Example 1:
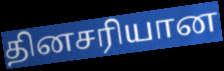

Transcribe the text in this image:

தினசரியான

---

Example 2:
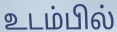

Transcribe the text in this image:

உடம்பில்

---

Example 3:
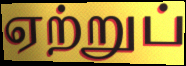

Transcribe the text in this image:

ஏற்றுப்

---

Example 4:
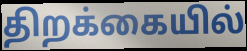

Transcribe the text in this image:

திறக்கையில்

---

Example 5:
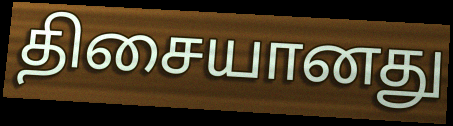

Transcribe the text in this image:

திசையானது